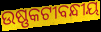
ଉଷ୍ଣକଟୀବନ୍ଧୀୟ